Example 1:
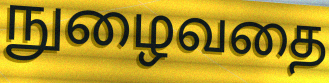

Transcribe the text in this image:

நுழைவதை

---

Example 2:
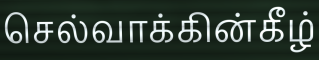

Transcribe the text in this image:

செல்வாக்கின்கீழ்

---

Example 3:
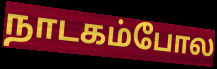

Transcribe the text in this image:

நாடகம்போல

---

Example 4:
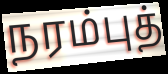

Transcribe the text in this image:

நரம்புத்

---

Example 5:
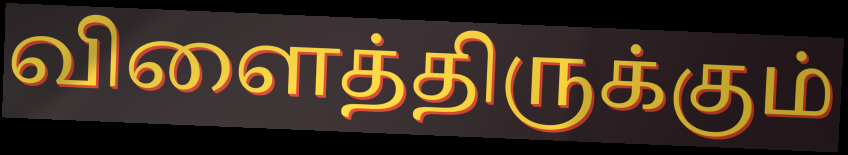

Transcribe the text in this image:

விளைத்திருக்கும்